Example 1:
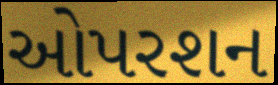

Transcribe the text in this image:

ઓપરશન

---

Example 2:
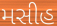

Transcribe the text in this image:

મસીહ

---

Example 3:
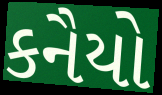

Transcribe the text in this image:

કનૈયો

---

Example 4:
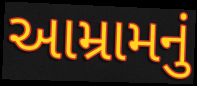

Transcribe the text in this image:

આમ્રામનું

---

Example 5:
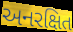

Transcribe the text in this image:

અનરક્ષિત